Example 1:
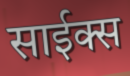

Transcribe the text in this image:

साईक्स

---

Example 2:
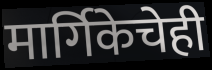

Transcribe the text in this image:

मार्गिकेचेही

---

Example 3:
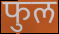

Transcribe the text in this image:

फुल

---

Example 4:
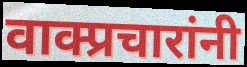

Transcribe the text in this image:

वाक्प्रचारांनी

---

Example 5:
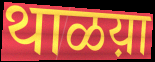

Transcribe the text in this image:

थाळय़ा